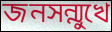
জনসন্মুখে